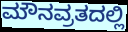
ಮೌನವ್ರತದಲ್ಲಿ